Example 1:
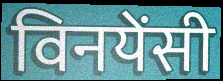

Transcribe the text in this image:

विनयेंसी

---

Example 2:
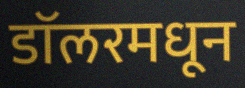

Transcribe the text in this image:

डॉलरमधून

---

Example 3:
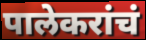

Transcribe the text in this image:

पालेकरांचं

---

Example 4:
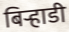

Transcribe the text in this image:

बिर्‍हाडी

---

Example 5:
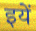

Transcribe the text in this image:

इयें